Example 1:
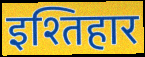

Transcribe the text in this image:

इश्तिहार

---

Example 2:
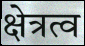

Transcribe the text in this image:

क्षेत्रत्व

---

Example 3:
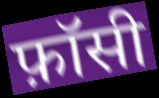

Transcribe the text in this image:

फ़ॉसी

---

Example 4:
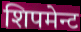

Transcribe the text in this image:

शिपमेन्ट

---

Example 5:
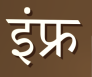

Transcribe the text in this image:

इंफ्र